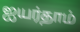
ஐயர்தாம்